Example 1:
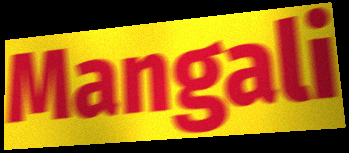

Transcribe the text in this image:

Mangali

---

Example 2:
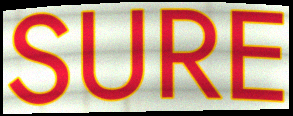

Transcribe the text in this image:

SURE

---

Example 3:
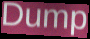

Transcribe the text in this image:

Dump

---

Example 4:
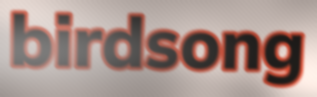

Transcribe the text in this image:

birdsong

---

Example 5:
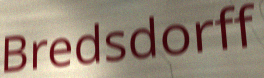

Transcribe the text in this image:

Bredsdorff